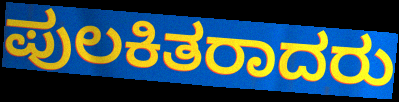
ಪುಲಕಿತರಾದರು